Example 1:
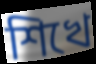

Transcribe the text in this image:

শিখে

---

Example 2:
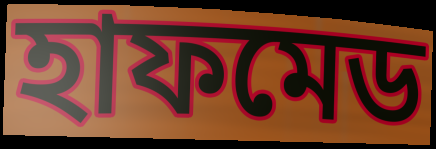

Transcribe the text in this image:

হাফমেড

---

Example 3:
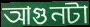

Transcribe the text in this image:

আগুনটা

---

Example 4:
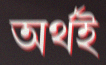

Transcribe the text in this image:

অর্থই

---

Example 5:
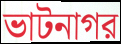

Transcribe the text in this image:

ভাটনাগর